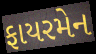
ફાયરમેન